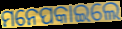
ମନେପକାଇଲେ